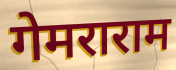
गेमराराम